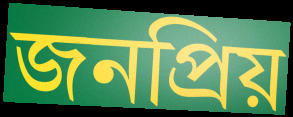
জনপ্ৰিয়